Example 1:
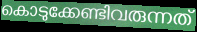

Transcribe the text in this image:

കൊടുക്കേണ്ടിവരുന്നത്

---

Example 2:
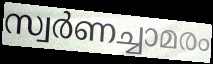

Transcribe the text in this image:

സ്വർണച്ചാമരം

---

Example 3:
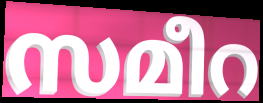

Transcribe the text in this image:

സമീറ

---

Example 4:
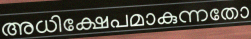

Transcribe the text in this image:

അധിക്ഷേപമാകുന്നതോ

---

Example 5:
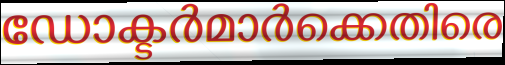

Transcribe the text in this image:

ഡോക്ടർമാർക്കെതിരെ